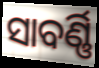
ସାବର୍ଣ୍ଣି